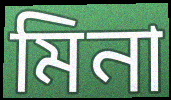
মিনা